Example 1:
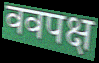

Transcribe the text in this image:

ववपक्ष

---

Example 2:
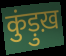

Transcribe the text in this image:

कुंड़ुख़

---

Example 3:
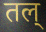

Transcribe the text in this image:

तल्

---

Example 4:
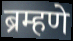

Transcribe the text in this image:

ब्रम्हणे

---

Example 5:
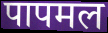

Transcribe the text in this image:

पापमल